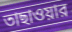
তাছাওয়ার